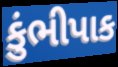
કુંભીપાક